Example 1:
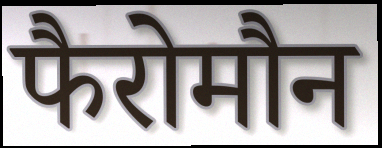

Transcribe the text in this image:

फैरोमौन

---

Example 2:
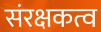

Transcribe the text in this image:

संरक्षकत्व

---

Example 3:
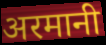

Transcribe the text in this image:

अरमानी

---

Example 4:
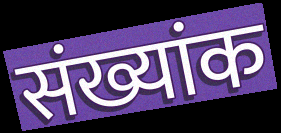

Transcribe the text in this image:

संख्यांक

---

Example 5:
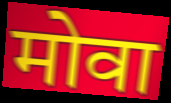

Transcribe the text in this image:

मोवा